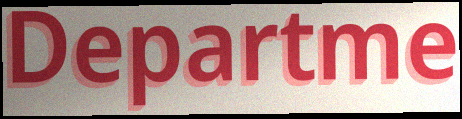
Departme